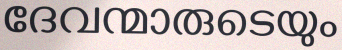
ദേവന്മാരുടെയും